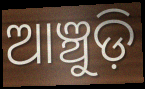
ଆଞ୍ଚୁଡ଼ି